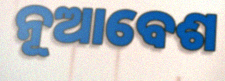
ନୂଆବେଶ